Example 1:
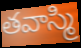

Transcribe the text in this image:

తవాస్మి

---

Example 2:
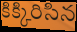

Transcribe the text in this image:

కిక్కిరిసిన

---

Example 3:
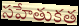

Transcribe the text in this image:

సహేతుకత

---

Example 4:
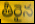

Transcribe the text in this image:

తీరైన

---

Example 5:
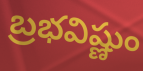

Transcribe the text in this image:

బ్రభవిష్ణుం